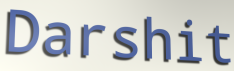
Darshit